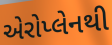
એરોપ્લેનથી